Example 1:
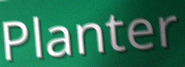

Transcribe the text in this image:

Planter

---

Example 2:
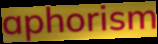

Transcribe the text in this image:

aphorism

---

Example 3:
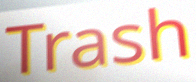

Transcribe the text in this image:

Trash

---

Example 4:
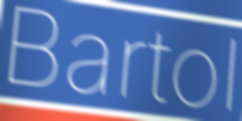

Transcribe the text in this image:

Bartol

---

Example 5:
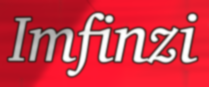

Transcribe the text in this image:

Imfinzi